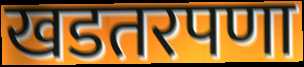
खडतरपणा